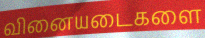
வினையடைகளை